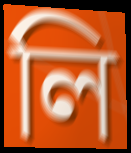
লি